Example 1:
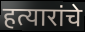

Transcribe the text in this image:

हत्यारांचे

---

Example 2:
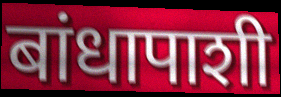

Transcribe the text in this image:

बांधापाशी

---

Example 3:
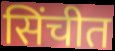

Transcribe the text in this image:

सिंचीत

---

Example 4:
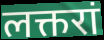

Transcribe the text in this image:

लक्तरां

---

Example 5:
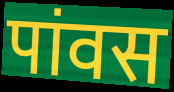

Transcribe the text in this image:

पांवस